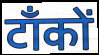
टाँकों